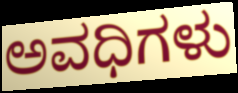
ಅವಧಿಗಳು